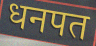
धनपत